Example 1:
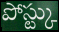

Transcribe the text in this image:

పోస్ట్కు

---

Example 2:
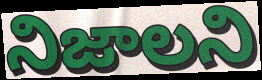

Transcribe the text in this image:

నిజాలని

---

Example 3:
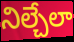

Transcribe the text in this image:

నిల్చేలా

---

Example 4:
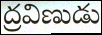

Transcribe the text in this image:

ద్రవిణుడు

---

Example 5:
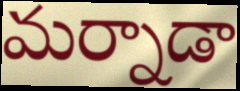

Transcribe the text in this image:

మర్నాడా